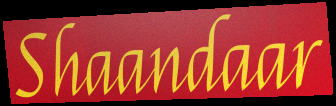
Shaandaar